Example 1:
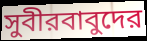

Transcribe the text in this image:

সুবীরবাবুদের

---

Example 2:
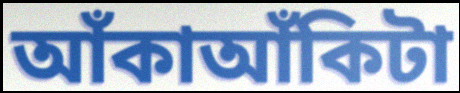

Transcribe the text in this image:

আঁকাআঁকিটা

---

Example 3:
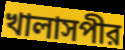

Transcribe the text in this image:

খালাসপীর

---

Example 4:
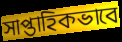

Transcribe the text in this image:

সাপ্তাহিকভাবে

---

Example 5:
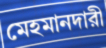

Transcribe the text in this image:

মেহমানদারী